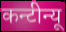
कन्टीन्यू